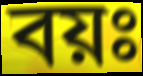
বয়ঃ